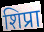
शिप्रा